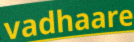
vadhaare